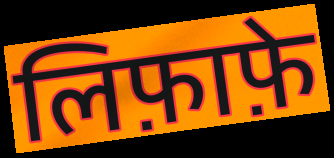
लिफ़ाफ़े